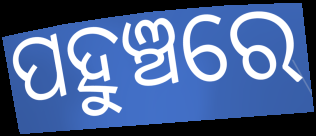
ପହୁଞ୍ଚରେ